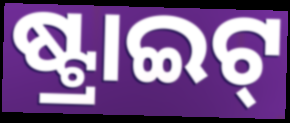
ଷ୍ଟ୍ରାଇଟ୍